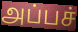
அப்பச்